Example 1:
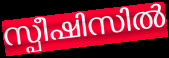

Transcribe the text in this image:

സ്പീഷിസിൽ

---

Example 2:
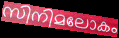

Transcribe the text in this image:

സിനിമലോകം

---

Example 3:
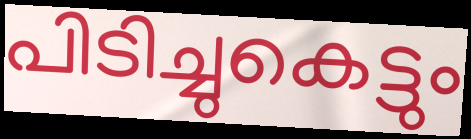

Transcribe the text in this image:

പിടിച്ചുകെട്ടും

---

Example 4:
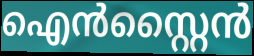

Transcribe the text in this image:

ഐൻസ്റ്റൈൻ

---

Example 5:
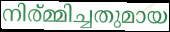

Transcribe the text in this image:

നിര്മ്മിച്ചതുമായ